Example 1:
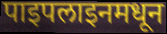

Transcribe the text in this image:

पाइपलाइनमधून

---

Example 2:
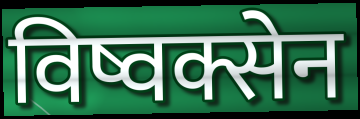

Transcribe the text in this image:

विष्वक्सेन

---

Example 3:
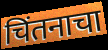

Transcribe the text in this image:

चिंतनाचा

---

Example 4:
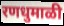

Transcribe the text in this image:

रणधुमाळी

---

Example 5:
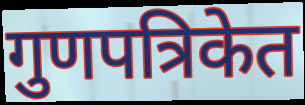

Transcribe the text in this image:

गुणपत्रिकेत